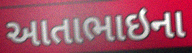
આતાભાઇના